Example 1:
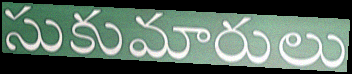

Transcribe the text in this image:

సుకుమారులు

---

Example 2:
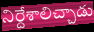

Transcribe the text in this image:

నిర్దేశాలిచ్చాడు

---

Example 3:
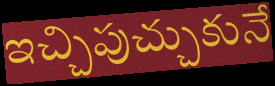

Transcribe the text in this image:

ఇచ్చిపుచ్చుకునే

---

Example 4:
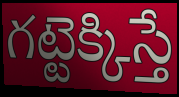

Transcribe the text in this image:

గట్టెక్కిస్తే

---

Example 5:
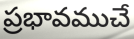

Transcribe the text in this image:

ప్రభావముచే